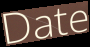
Date